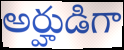
అర్హుడిగా